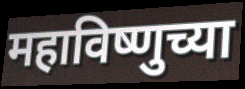
महाविष्णुच्या